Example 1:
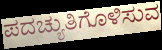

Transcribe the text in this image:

ಪದಚ್ಯುತಿಗೊಳಿಸುವ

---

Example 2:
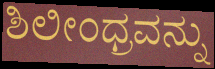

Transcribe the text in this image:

ಶಿಲೀಂಧ್ರವನ್ನು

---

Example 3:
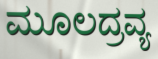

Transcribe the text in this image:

ಮೂಲದ್ರವ್ಯ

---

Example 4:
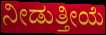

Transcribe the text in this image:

ನೀಡುತ್ತೀಯೆ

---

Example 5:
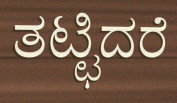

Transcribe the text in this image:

ತಟ್ಟಿದರೆ